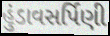
હુંડાવસર્પિણી